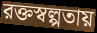
রক্তস্বল্পতায়